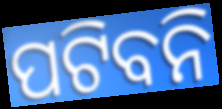
ପଟିବନି